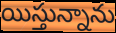
యిస్తున్నాను